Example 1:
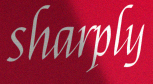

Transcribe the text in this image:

sharply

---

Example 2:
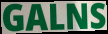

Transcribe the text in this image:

GALNS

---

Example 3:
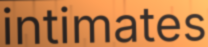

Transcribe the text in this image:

intimates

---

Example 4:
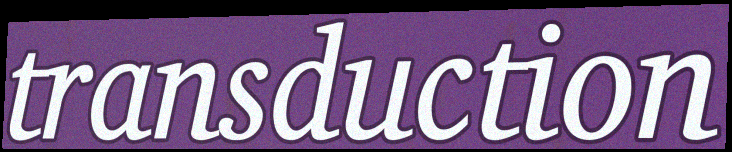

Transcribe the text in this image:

transduction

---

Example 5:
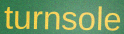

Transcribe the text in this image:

turnsole